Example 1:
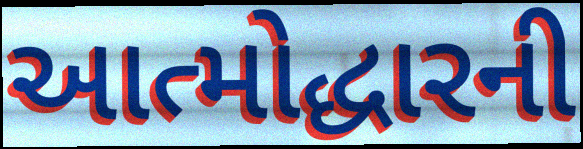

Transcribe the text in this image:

આત્મોદ્ધારની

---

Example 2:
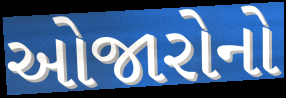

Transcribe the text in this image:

ઓજારોનો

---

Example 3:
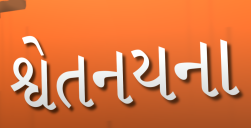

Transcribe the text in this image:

શ્વેતનયના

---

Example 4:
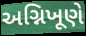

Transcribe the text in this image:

અગ્નિખૂણે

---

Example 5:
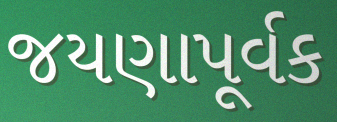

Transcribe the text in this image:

જયણાપૂર્વક